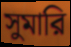
সুমারি